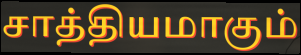
சாத்தியமாகும்